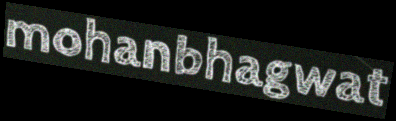
mohanbhagwat